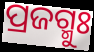
ପ୍ରଜଗ୍ମୁଃ